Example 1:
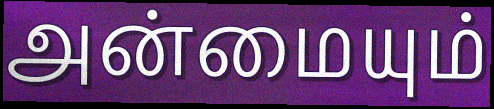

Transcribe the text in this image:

அன்மையும்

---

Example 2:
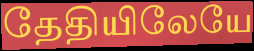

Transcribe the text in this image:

தேதியிலேயே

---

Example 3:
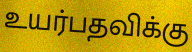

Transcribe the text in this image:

உயர்பதவிக்கு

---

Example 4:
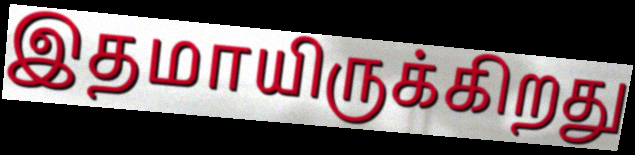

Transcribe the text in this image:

இதமாயிருக்கிறது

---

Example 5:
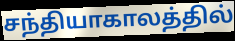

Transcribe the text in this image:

சந்தியாகாலத்தில்